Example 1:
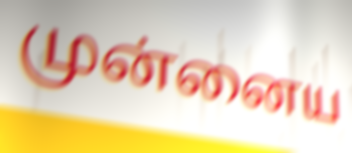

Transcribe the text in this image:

முன்னைய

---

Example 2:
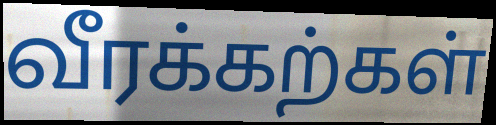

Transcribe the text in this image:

வீரக்கற்கள்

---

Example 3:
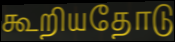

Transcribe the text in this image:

கூறியதோடு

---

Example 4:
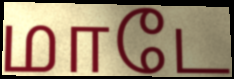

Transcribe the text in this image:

மாடே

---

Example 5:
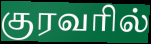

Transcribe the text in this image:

குரவரில்